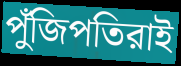
পুঁজিপতিরাই